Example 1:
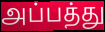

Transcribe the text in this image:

அப்பத்து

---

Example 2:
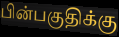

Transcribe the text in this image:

பின்பகுதிக்கு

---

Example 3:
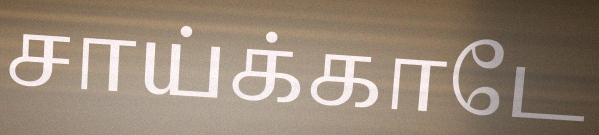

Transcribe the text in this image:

சாய்க்காடே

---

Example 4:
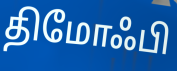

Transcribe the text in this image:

திமோஃபி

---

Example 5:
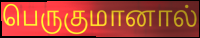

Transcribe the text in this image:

பெருகுமானால்